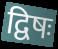
द्विषः